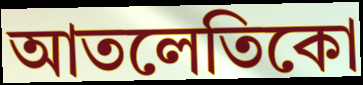
আতলেতিকো